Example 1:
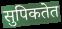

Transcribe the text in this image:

सुपिकतेत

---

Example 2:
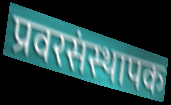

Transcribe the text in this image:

प्रवरसंस्थापक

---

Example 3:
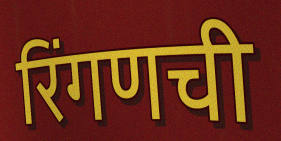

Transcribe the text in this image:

रिंगणची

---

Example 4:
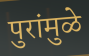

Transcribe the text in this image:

पुरांमुळे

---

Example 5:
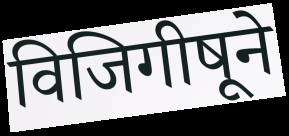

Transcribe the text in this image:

विजिगीषूने